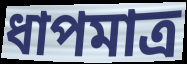
ধাপমাত্র